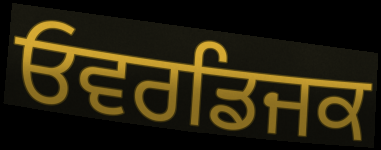
ਓਵਰਡਿਜਕ